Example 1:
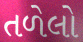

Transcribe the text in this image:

તળેલો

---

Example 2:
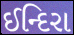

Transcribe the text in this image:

ઈન્દિરા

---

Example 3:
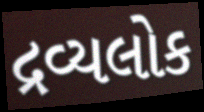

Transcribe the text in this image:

દ્રવ્યલોક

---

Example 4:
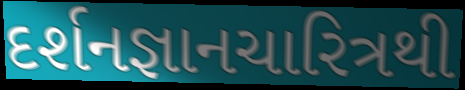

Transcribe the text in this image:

દર્શનજ્ઞાનચારિત્રથી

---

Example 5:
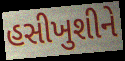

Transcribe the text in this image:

હસીખુશીને